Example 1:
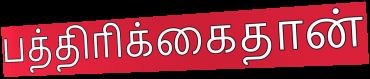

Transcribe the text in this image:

பத்திரிக்கைதான்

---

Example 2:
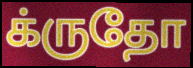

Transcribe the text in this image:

க்ருதோ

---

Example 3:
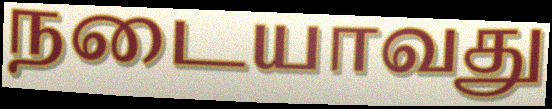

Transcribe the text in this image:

நடையாவது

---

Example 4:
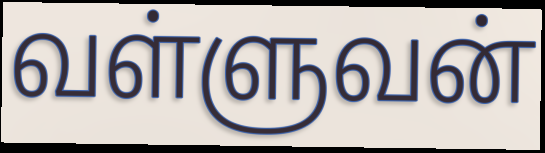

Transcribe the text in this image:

வள்ளுவன்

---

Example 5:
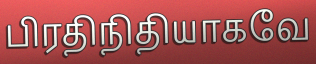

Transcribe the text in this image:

பிரதிநிதியாகவே